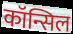
कॉन्सिल